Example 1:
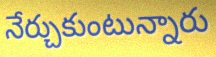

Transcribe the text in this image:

నేర్చుకుంటున్నారు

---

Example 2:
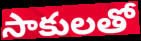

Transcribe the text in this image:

సాకులతో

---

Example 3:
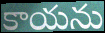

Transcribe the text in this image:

కాయను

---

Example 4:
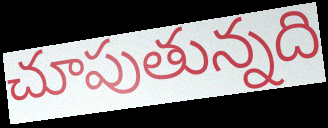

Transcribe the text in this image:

చూపుతున్నది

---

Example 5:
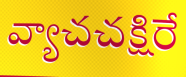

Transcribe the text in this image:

వ్యాచచక్షిరే